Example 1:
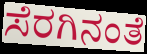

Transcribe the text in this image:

ಸೆರಗಿನಂತೆ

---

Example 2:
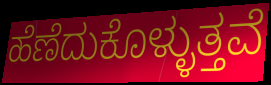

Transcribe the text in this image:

ಹೆಣೆದುಕೊಳ್ಳುತ್ತವೆ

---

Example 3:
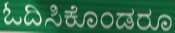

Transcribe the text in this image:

ಓದಿಸಿಕೊಂಡರೂ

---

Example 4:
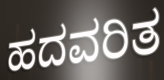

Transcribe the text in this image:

ಹದವರಿತ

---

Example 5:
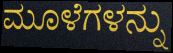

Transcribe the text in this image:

ಮೂಳೆಗಳನ್ನು